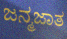
ಜನ್ಮಜಾತ